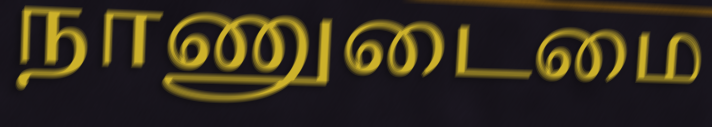
நாணுடைமை